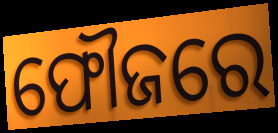
ଫୌଜରେ